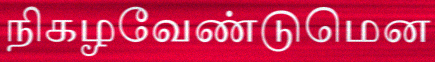
நிகழவேண்டுமென